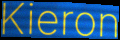
Kieron